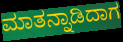
ಮಾತನ್ನಾಡಿದಾಗ